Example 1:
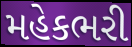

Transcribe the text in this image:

મહેકભરી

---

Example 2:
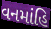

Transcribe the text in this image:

વનમાંહિ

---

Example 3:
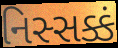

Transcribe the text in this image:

નિસ્સક્કં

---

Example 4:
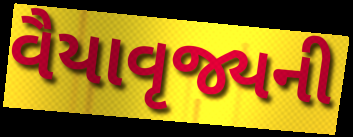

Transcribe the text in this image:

વૈયાવૃજ્યની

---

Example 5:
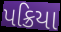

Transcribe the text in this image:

પક્રિયા